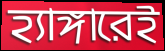
হ্যাঙ্গারেই